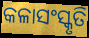
କଳାସଂସ୍କୃତି